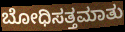
ಬೋಧಿಸತ್ತಮಾತು